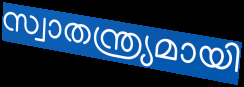
സ്വാതന്ത്ര്യമായി